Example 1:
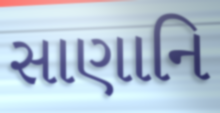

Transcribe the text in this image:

સાણાનિ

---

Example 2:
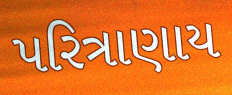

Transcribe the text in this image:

પરિત્રાણાય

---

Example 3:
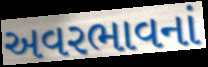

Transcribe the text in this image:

અવરભાવનાં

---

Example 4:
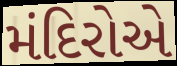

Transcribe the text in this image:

મંદિરોએ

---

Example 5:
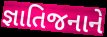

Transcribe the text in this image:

જ્ઞાતિજનાને